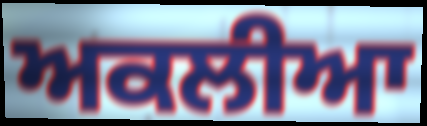
ਅਕਲੀਆ